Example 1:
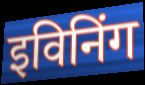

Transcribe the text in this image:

इविनिंग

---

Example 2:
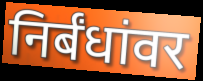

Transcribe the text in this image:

निर्बंधांवर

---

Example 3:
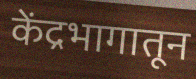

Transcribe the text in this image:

केंद्रभागातून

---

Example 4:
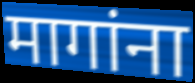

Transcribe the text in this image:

मागांना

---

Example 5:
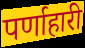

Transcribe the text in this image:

पर्णाहारी